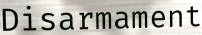
Disarmament